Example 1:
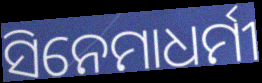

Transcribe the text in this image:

ସିନେମାଧର୍ମୀ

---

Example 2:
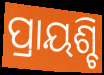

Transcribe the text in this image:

ପ୍ରାୟଶ୍ଚି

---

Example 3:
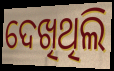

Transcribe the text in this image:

ଦେଖିଥିଲି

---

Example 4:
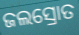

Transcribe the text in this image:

ଜଲସ୍ରୋତ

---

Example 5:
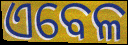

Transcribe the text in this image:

ଏବେଳ